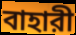
বাহারী